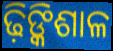
ଢ଼ିଙ୍କିଶାଳ